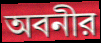
অবনীর